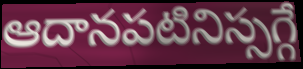
ఆదానపటినిస్సగ్గే